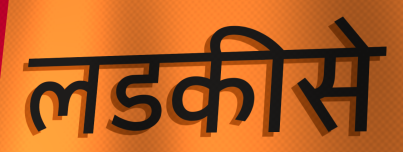
लडकीसे